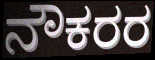
ನೌಕರರ